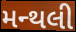
મન્થલી